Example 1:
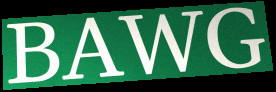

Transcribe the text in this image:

BAWG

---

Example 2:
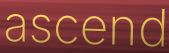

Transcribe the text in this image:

ascend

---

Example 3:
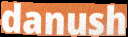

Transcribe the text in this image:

danush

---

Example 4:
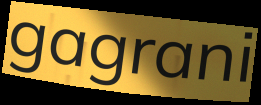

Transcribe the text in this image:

gagrani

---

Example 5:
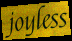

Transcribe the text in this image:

joyless